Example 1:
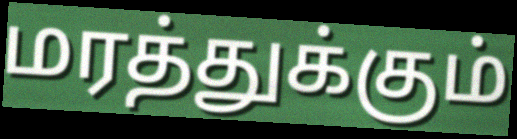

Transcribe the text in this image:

மரத்துக்கும்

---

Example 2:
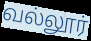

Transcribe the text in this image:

வல்லூர்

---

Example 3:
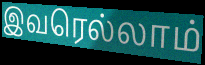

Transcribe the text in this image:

இவரெல்லாம்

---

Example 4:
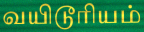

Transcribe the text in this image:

வயிடூரியம்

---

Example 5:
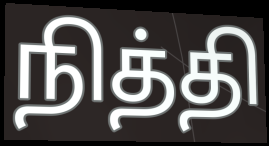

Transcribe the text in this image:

நித்தி